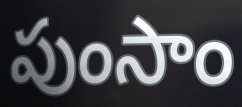
పుంసాం